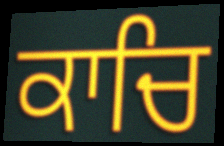
ਕਾਚਿ